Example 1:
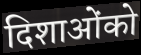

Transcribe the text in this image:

दिशाओंको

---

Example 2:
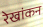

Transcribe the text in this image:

रेखांकन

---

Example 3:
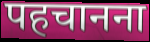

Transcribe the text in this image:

पहचानना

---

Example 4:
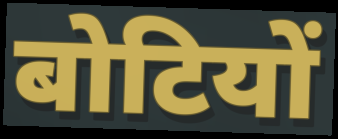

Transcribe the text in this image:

बोटियों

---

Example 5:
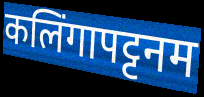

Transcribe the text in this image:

कलिंगापट्टनम